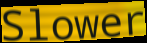
Slower